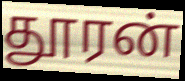
தூரன்